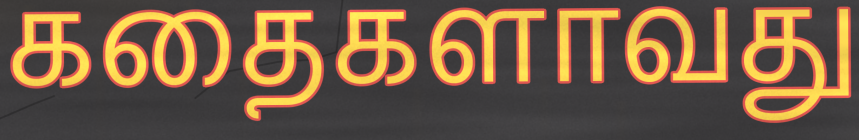
கதைகளாவது